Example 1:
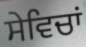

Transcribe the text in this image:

ਸੇਵਿਚਾਂ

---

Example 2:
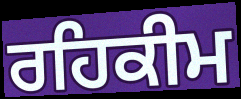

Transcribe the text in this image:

ਰਹਿਕੀਮ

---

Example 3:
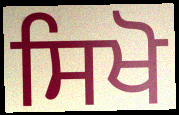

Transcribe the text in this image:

ਸਿਖੋ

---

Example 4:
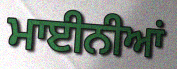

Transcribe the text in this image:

ਮਾਈਨੀਆਂ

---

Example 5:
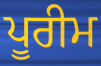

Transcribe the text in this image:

ਪੂਰੀਮ